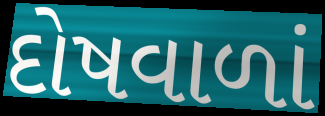
દોષવાળાં